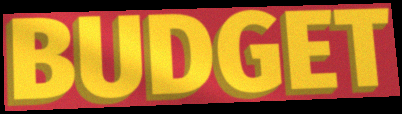
BUDGET